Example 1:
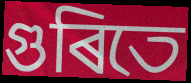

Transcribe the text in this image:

গুৰিতে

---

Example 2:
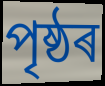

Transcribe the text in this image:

পৃষ্ঠৰ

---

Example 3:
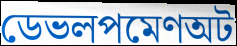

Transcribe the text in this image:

ডেভলপমেণঅট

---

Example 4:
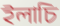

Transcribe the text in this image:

ইলাচি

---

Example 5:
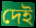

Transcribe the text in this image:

দেই